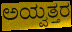
ಅಯ್ವತ್ತರ